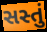
સસ્તું